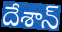
దేశాన్